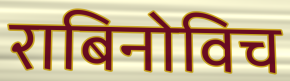
राबिनोविच